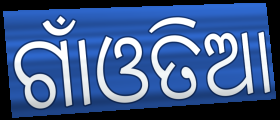
ଗାଁଓତିଆ